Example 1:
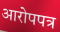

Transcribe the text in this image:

आरोपपत्र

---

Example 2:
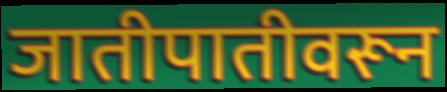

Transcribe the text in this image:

जातीपातीवरून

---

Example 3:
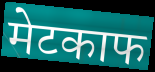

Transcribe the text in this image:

मेटकाफ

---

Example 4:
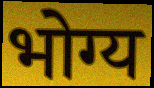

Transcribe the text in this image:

भोग्य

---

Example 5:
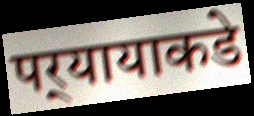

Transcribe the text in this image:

पर्यायाकडे